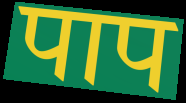
पाप